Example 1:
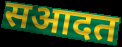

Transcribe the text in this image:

सआदत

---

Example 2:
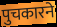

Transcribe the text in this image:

पुचकारने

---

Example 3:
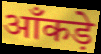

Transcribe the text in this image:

आँकड़े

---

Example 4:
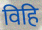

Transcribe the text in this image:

विहि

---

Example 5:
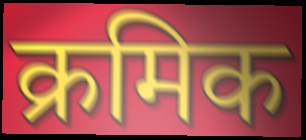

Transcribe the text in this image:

क्रमिक